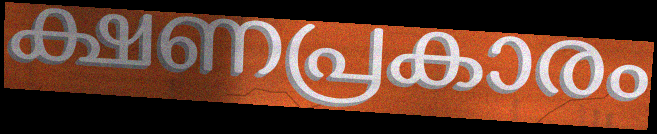
ക്ഷണപ്രകാരം